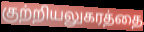
குற்றியலுகரத்தை